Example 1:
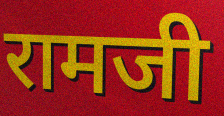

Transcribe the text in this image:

रामजी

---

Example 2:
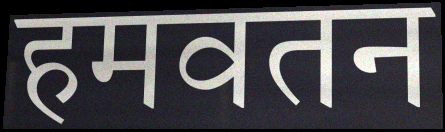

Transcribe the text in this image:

हमवतन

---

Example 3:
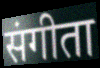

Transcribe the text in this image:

संगीता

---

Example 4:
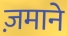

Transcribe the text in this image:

ज़माने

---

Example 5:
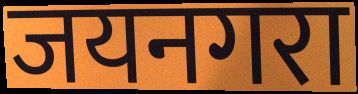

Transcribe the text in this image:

जयनगरा